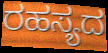
ರಹಸ್ಯದ